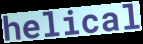
helical